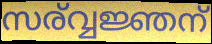
സര്വ്വജ്ഞന്